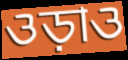
ওড়াও